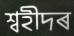
শ্বহীদৰ